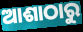
ଆଶାଠାରୁ